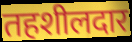
तहशीलदार